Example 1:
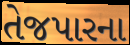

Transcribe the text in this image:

તેજપારના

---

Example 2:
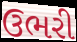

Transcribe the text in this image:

ઉભરી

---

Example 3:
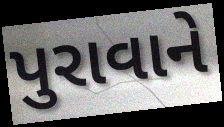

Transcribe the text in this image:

પુરાવાને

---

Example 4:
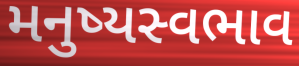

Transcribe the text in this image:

મનુષ્યસ્વભાવ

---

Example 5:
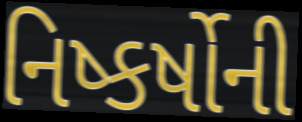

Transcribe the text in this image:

નિષ્કર્ષોની